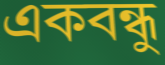
একবন্ধু